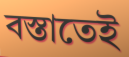
বস্তাতেই